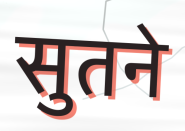
सुतने